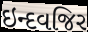
ઇન્દવજિર